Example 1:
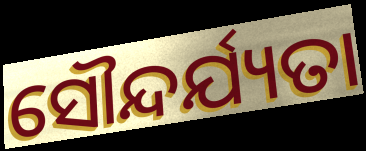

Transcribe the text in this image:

ସୌନ୍ଦର୍ଯ୍ୟତା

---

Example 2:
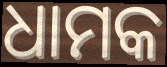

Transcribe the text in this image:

ଧାମକ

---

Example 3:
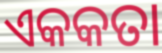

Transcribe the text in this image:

ଏକକତା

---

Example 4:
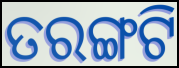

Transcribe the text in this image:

ତରଙ୍ଗଟି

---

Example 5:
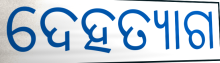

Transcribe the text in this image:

ଦେହତ୍ୟାଗ